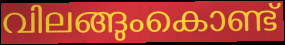
വിലങ്ങുംകൊണ്ട്